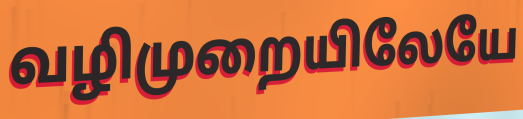
வழிமுறையிலேயே